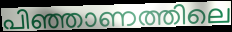
പിഞ്ഞാണത്തിലെ